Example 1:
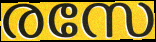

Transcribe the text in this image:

രസേ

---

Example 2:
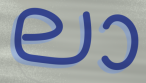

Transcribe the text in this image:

ലാ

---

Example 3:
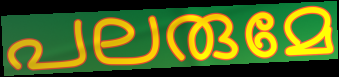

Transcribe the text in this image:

പലരുമേ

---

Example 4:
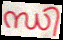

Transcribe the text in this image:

ന്ധി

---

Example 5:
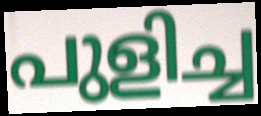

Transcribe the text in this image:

പുളിച്ച